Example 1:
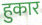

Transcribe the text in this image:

हुकार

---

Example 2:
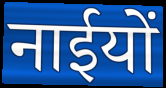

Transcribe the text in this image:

नाईयों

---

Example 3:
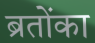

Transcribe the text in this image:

ब्रतोंका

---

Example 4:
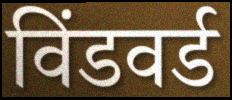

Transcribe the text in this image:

विंडवर्ड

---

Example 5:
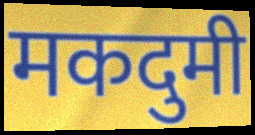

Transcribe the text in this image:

मकदुमी